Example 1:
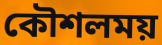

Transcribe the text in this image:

কৌশলময়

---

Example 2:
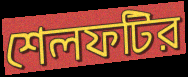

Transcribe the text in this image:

শেলফটির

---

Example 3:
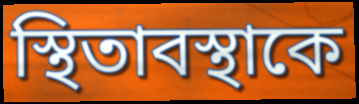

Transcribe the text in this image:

স্থিতাবস্থাকে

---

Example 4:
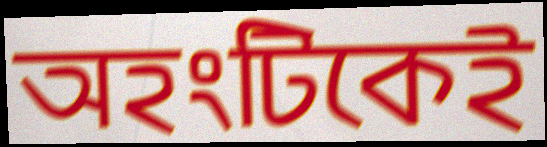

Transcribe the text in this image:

অহংটিকেই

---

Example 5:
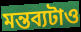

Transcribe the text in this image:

মন্তব্যটাও